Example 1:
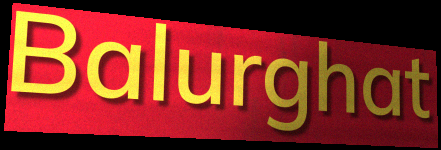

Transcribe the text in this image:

Balurghat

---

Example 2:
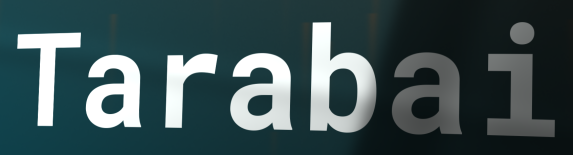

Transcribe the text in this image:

Tarabai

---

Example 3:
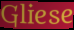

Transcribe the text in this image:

Gliese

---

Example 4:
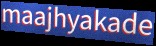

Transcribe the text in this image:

maajhyakade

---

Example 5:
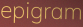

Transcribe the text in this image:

epigram